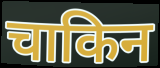
चाकिन